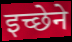
इच्छेने